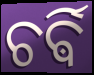
ଚର୍ଵି